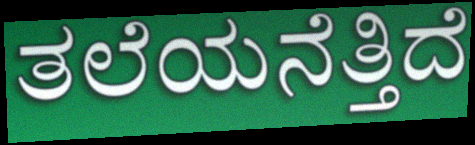
ತಲೆಯನೆತ್ತಿದೆ